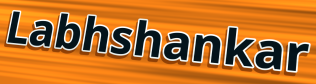
Labhshankar